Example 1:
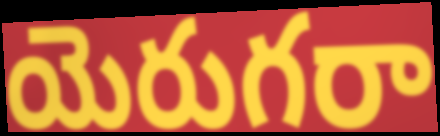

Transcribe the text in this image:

యెరుగరా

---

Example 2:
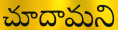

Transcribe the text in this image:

చూదామని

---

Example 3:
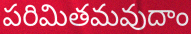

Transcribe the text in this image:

పరిమితమవుదాం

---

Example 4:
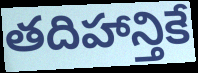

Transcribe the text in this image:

తదిహాన్తికే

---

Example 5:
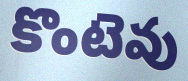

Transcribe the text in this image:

కొంటెవు